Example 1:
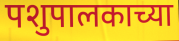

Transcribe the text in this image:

पशुपालकाच्या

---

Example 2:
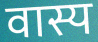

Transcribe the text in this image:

वास्य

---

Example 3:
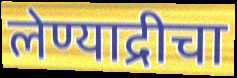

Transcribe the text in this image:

लेण्याद्रीचा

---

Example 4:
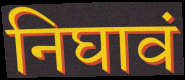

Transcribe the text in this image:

निघावं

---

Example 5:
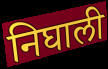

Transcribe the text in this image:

निघाली